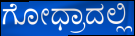
ಗೋಧ್ರಾದಲ್ಲಿ